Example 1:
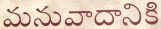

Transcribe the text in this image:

మనువాదానికి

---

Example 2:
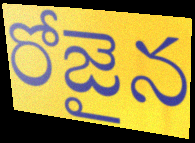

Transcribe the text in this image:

రోజైన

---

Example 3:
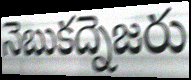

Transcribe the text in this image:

నెబుకద్నెజరు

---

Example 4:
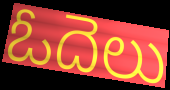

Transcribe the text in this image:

ఓదెలు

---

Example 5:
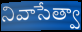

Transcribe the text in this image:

నివాసేత్వా